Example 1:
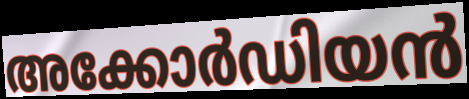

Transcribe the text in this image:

അക്കോർഡിയൻ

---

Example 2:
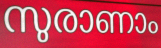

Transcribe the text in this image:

സുരാണാം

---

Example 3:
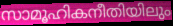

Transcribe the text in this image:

സാമൂഹികനീതിയിലും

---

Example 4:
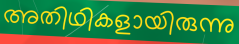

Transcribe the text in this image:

അതിഥികളായിരുന്നു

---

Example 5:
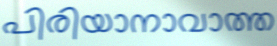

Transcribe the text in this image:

പിരിയാനാവാത്ത